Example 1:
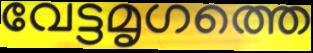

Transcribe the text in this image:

വേട്ടമൃഗത്തെ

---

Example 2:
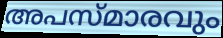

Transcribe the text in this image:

അപസ്മാരവും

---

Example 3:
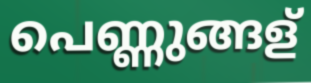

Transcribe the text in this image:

പെണ്ണുങ്ങള്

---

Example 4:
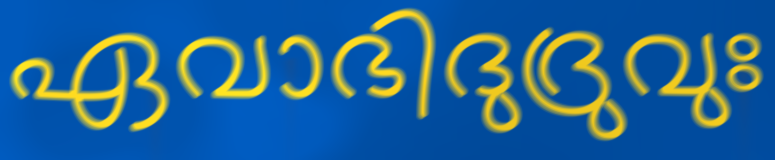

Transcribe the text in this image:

ഏവാഭിദുദ്രുവുഃ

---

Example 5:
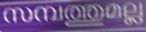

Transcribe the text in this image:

സമ്പത്തുമല്ല